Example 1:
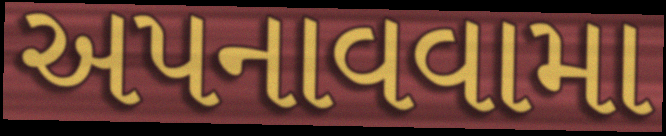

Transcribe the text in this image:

અપનાવવામા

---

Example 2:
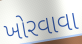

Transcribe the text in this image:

ખોરવાવા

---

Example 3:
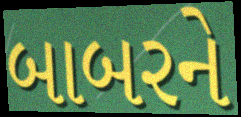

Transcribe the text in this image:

બાબરને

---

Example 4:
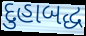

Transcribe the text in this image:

દુહાબદ્ધ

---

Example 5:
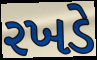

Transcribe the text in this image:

રખડે